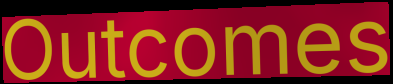
Outcomes